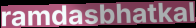
ramdasbhatkal